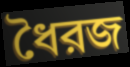
ধৈরজ